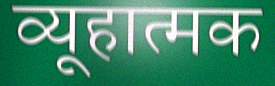
व्यूहात्मक